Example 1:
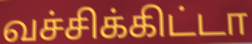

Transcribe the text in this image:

வச்சிக்கிட்டா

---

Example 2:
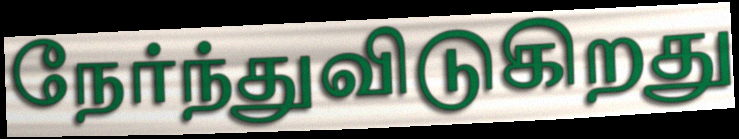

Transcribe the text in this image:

நேர்ந்துவிடுகிறது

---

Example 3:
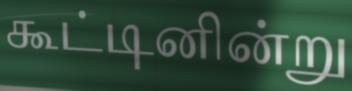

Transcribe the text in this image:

கூட்டினின்று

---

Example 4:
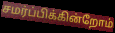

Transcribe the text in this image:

சமர்ப்பிக்கின்றோம்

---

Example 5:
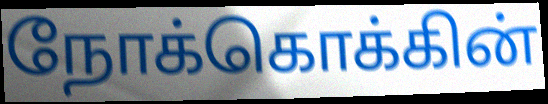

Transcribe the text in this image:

நோக்கொக்கின்